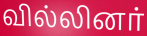
வில்லினர்